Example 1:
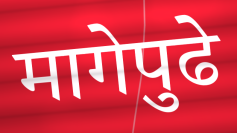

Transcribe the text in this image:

मागेपुढे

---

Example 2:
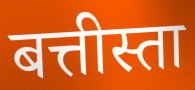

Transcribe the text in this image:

बत्तीस्ता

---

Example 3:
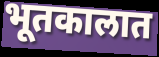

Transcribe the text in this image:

भूतकालात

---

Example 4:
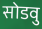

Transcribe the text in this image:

सोडवु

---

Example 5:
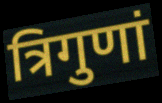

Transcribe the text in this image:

त्रिगुणां